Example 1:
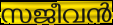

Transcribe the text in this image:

സജീവൻ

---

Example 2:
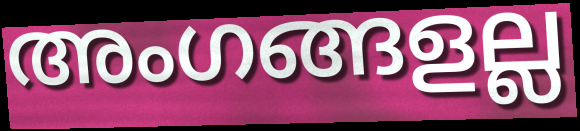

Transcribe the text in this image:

അംഗങ്ങളല്ല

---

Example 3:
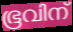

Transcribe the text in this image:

ഭൂവിന്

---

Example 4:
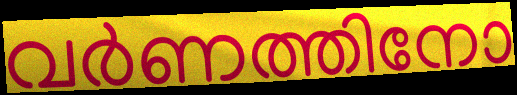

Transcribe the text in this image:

വർണത്തിനോ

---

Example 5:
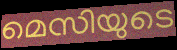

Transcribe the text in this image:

മെസിയുടെ